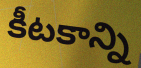
కీటకాన్ని